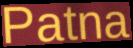
Patna